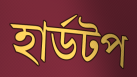
হার্ডটপ